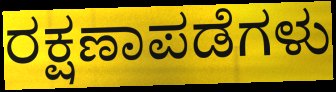
ರಕ್ಷಣಾಪಡೆಗಳು